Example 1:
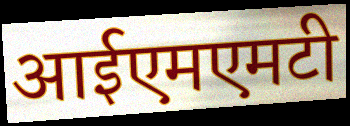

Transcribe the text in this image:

आईएमएमटी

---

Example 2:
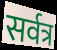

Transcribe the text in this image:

सर्वत्र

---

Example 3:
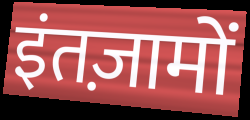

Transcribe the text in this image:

इंतज़ामों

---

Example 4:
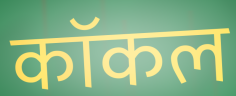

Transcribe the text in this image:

कॉकल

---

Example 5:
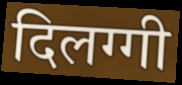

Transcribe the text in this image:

दिलग्गी